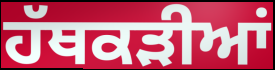
ਹੱਥਕੜੀਆਂ